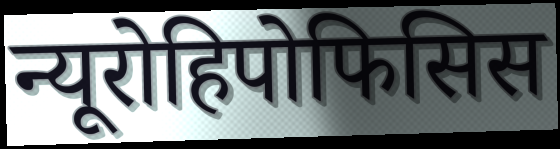
न्यूरोहिपोफिसिस